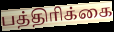
பத்திரிக்கை